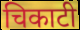
चिकाटी